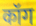
कॉग